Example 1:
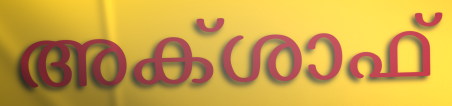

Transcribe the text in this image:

അക്ശാഫ്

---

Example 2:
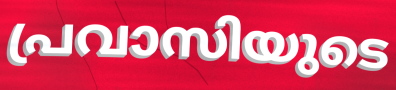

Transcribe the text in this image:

പ്രവാസിയുടെ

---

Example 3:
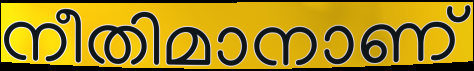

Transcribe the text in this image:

നീതിമാനാണ്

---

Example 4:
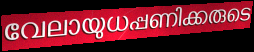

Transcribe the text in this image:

വേലായുധപ്പണിക്കരുടെ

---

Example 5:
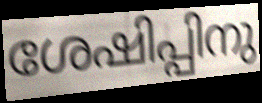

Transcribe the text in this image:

ശേഷിപ്പിനു